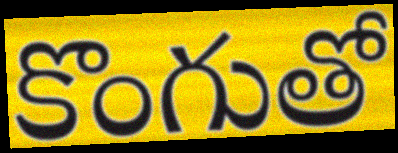
కొంగుతో